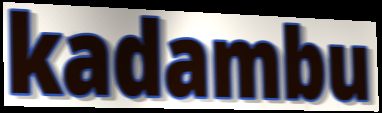
kadambu